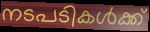
നടപടികൾക്ക്